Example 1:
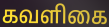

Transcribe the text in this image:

கவளிகை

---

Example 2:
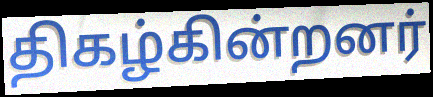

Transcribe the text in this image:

திகழ்கின்றனர்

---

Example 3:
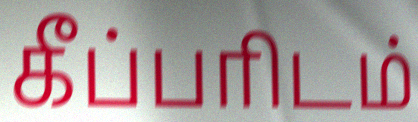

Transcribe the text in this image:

கீப்பரிடம்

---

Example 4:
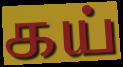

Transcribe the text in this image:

கய்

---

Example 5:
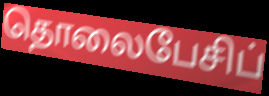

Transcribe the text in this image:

தொலைபேசிப்